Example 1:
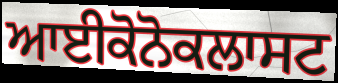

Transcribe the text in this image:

ਆਈਕੋਨੋਕਲਾਸਟ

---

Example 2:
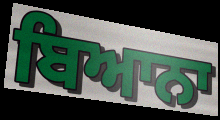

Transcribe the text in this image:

ਬਿਆਨਾ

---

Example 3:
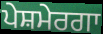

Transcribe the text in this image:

ਪੇਸ਼ਮੇਰਗਾ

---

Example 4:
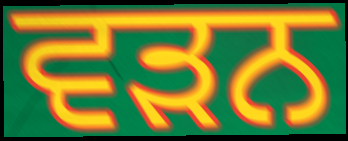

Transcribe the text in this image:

ਵਡ਼ਨ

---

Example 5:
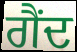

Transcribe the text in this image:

ਗੈਂਦ